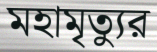
মহামৃত্যুর